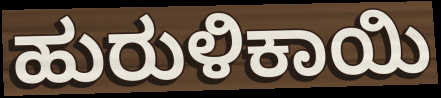
ಹುರುಳಿಕಾಯಿ